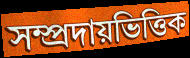
সম্প্ৰদায়ভিত্তিক